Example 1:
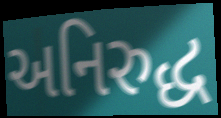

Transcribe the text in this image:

અનિરુદ્ધ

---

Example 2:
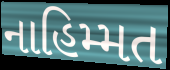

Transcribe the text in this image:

નાહિમ્મત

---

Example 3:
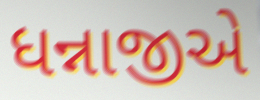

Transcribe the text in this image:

ધન્નાજીએ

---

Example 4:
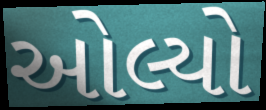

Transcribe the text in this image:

ઓલ્યો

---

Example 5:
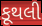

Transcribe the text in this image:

કૂથલી